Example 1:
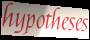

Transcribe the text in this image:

hypotheses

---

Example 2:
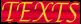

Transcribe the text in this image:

TEXTS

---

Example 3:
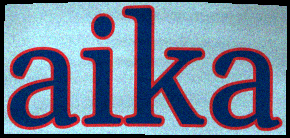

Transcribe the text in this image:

aika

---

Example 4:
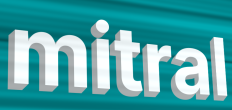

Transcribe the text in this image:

mitral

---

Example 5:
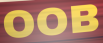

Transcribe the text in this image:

OOB